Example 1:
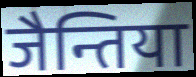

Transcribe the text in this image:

जैन्तिया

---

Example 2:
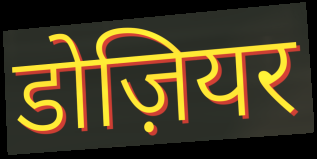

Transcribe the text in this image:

डोज़ियर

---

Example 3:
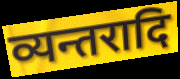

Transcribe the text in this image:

व्यन्तरादि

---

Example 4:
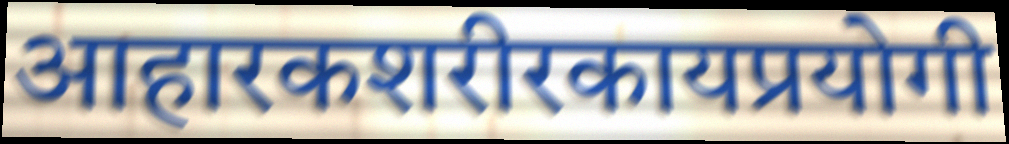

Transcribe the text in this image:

आहारकशरीरकायप्रयोगी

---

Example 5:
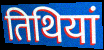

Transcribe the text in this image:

तिथियां